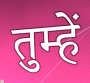
तुम्‍हें